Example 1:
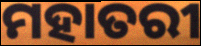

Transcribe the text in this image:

ମହାତରୀ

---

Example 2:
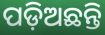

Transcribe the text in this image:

ପଡ଼ିଅଛନ୍ତି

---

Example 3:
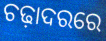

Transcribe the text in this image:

ଚଢ଼ାଦରରେ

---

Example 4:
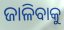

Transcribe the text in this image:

ଜାଳିବାକୁ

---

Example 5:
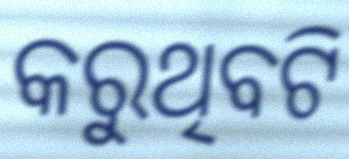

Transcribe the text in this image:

କରୁଥିବଟି